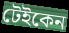
টেইকেন